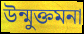
উন্মুক্তমনা